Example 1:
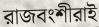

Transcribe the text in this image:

রাজবংশীরাই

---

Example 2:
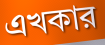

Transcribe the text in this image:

এখকার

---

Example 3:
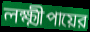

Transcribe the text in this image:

লক্ষ্মীপায়ের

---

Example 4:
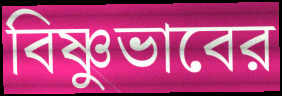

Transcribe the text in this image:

বিষ্ণুভাবের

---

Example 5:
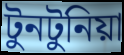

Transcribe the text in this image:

টুনটুনিয়া